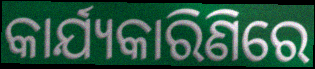
କାର୍ଯ୍ୟକାରିଣିରେ